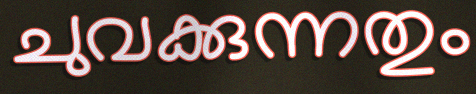
ചുവക്കുന്നതും